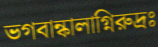
ভগবান্কালাগ্নিরুদ্রঃ